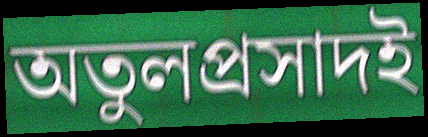
অতুলপ্রসাদই